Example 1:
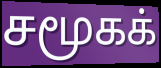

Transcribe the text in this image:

சமூகக்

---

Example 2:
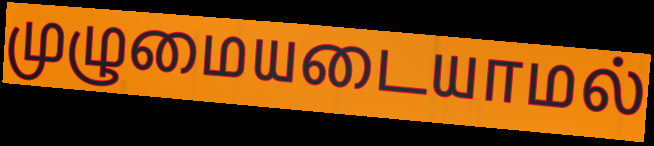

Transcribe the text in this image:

முழுமையடையாமல்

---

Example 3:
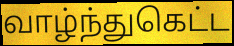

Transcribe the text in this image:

வாழ்ந்துகெட்ட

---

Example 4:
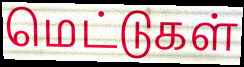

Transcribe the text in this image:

மெட்டுகள்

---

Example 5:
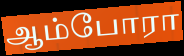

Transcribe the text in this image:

ஆம்போரா